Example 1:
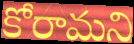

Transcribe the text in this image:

కోరామని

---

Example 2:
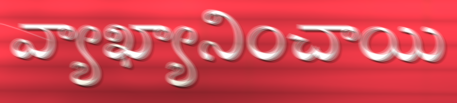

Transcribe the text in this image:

వ్యాఖ్యానించాయి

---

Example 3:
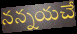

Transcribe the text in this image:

నన్నయచే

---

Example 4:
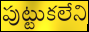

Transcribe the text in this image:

పుట్టుకలేని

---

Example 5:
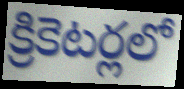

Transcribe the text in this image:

క్రికెటర్లలో